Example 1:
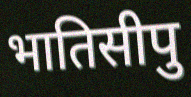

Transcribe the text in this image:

भातिसीपु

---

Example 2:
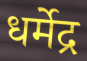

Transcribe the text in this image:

धर्मेद्र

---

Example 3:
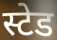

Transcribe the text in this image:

स्टेड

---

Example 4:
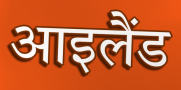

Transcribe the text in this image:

आइलैंड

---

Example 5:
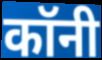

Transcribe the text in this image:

कॉनी